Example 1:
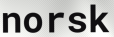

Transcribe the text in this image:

norsk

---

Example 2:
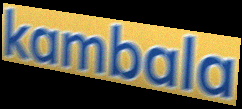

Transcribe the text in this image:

kambala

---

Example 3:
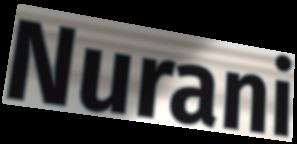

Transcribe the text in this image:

Nurani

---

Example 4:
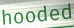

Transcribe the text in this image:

hooded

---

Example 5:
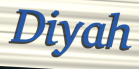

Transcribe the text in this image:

Diyah